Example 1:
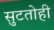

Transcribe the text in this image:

सुटतोही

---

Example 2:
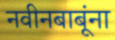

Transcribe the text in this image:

नवीनबाबूंना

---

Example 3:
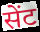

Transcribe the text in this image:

सेंट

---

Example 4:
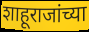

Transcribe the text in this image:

शाहूराजांच्या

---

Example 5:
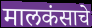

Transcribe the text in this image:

मालकंसाचे